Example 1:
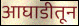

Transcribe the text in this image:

आघाडीतून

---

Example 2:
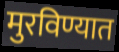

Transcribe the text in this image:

मुरविण्यात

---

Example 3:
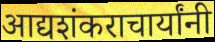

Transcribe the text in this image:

आद्यशंकराचार्यांनी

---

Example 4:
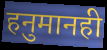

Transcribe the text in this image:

हनुमानही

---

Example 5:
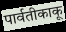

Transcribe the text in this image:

पार्वतीकाकू